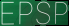
EPSP